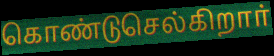
கொண்டுசெல்கிறார்